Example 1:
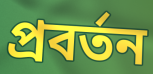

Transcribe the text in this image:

প্ৰবৰ্তন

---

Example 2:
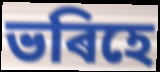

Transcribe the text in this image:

ভৰিহে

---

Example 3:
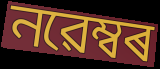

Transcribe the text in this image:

নৱেম্বৰ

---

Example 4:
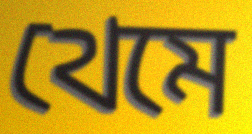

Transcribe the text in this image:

থেমে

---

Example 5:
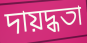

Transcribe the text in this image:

দায়দ্ধতা